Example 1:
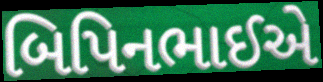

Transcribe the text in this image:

બિપિનભાઈએ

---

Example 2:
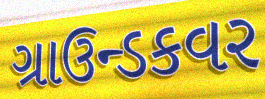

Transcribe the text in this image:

ગ્રાઉન્ડકવર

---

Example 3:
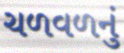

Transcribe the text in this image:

ચળવળનું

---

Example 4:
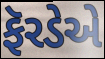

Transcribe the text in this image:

ફૅરડેએ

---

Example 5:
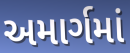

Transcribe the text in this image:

અમાર્ગમાં